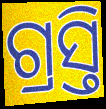
ଗ୍ରସ୍ତି